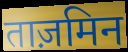
ताज़मिन